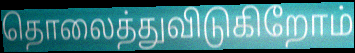
தொலைத்துவிடுகிறோம்